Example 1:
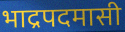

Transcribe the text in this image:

भाद्रपदमासी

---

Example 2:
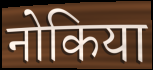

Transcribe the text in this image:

नोकिया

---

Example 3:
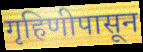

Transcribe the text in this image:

गृहिणीपासून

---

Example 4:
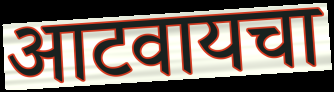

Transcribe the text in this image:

आटवायचा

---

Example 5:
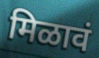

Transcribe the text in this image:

मिळावं